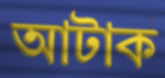
আটাক